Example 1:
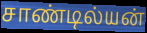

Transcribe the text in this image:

சாண்டில்யன்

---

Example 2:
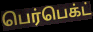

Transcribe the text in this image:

பெர்பெக்ட்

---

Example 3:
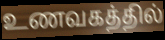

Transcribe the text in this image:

உணவகத்தில்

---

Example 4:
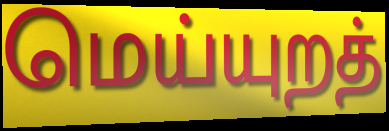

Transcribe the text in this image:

மெய்யுறத்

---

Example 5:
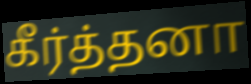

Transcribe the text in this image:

கீர்த்தனா